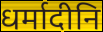
धर्मादीनि